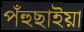
পঁহুছাইয়া